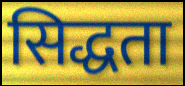
सिद्धता